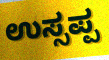
ಉಸ್ಸಪ್ಪ